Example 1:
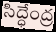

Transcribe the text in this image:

సిద్ధేంద్ర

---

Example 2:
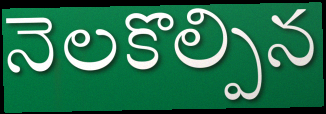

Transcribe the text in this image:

నెలకొల్పిన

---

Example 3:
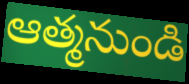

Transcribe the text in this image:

ఆత్మనుండి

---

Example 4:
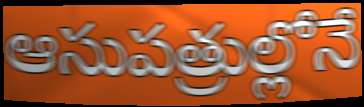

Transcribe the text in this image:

ఆసుపత్రుల్లోనే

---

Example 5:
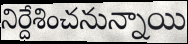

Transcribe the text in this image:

నిర్దేశించనున్నాయి